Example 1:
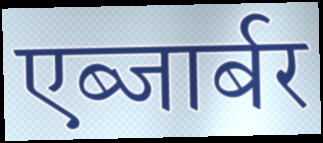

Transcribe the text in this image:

एब्जार्बर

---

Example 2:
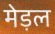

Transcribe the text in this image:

मेड़ल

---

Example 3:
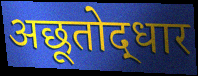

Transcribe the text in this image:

अछूतोद्धार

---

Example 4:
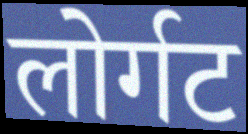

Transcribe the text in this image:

लोर्गट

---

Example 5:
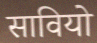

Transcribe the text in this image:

सावियो